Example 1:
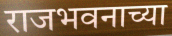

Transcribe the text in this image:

राजभवनाच्या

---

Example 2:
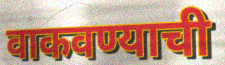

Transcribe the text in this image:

वाकवण्याची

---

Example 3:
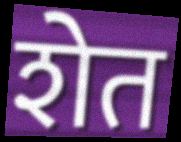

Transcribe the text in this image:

शेत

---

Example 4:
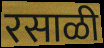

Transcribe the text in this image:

रसाळी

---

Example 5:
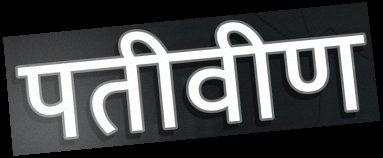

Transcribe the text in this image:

पतीवीण